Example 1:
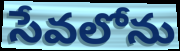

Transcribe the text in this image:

సేవలోను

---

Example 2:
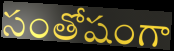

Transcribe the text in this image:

సంతోషంగా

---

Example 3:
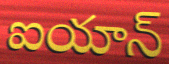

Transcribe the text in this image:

ఐయాన్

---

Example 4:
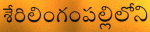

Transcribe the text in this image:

శేరిలింగంపల్లిలోని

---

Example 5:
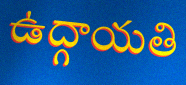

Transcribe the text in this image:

ఉద్గాయతి